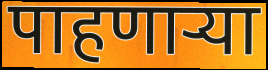
पाहणार्‍या